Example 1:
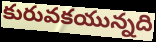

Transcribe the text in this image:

కురువకయున్నది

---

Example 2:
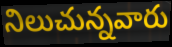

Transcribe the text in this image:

నిలుచున్నవారు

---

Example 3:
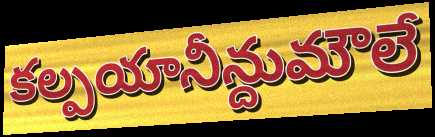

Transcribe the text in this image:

కల్పయానీన్దుమౌలే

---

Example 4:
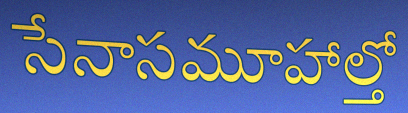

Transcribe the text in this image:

సేనాసమూహాల్తో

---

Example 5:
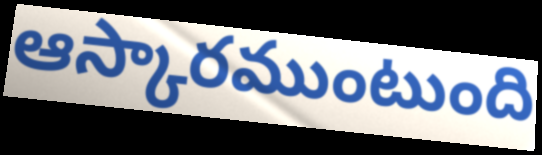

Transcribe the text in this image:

ఆస్కారముంటుంది